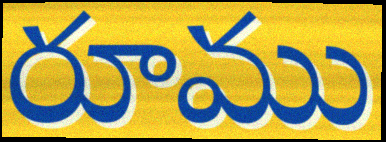
రూము